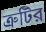
ত্রুটির